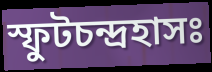
স্ফুটচন্দ্রহাসঃ